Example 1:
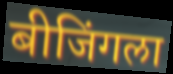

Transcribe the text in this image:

बीजिंगला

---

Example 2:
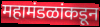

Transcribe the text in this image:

महामंडळांकडून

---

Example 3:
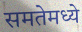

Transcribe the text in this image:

समतेमध्ये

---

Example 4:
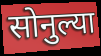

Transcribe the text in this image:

सोनुल्या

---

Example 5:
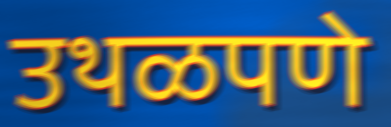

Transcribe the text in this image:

उथळपणे